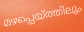
മഴപ്പെയ്ത്തിലും